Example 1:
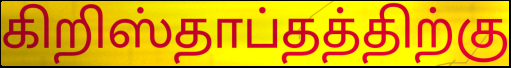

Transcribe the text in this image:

கிறிஸ்தாப்தத்திற்கு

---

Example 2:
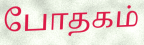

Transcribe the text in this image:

போதகம்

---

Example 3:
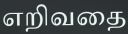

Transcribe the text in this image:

எறிவதை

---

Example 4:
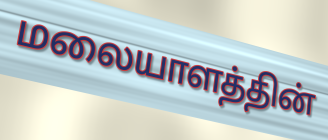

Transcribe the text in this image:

மலையாளத்தின்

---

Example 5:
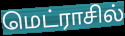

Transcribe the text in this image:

மெட்ராசில்